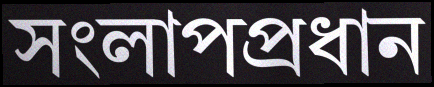
সংলাপপ্রধান